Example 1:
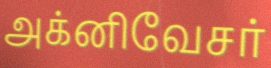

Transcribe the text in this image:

அக்னிவேசர்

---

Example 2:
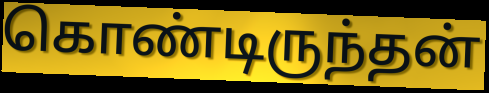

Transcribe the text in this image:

கொண்டிருந்தன்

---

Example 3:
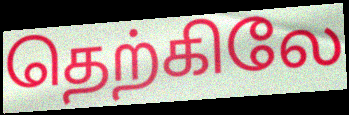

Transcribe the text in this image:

தெற்கிலே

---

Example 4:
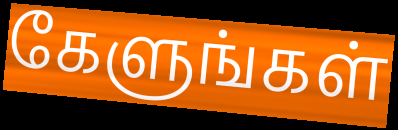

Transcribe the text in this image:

கேளுங்கள்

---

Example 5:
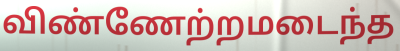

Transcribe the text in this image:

விண்ணேற்றமடைந்த